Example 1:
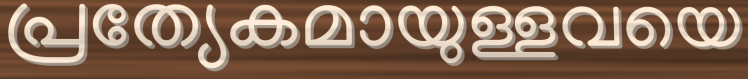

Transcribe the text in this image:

പ്രത്യേകമായുള്ളവയെ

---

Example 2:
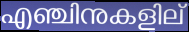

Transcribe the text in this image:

എഞ്ചിനുകളില്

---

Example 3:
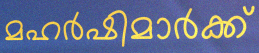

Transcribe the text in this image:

മഹർഷിമാർക്ക്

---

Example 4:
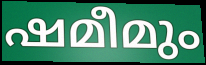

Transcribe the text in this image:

ഷമീമും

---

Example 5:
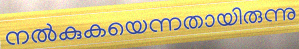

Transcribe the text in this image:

നൽകുകയെന്നതായിരുന്നു